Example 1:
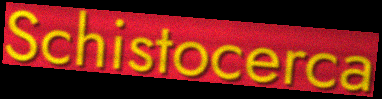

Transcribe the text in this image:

Schistocerca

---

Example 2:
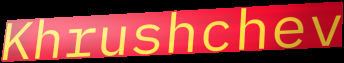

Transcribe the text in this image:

Khrushchev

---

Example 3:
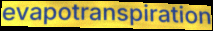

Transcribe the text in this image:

evapotranspiration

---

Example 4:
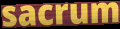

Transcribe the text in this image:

sacrum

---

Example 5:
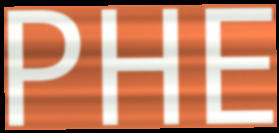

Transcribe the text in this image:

PHE